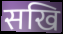
सखि